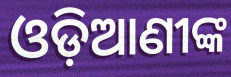
ଓଡ଼ିଆଣୀଙ୍କ